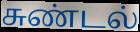
சுண்டல்